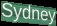
Sydney